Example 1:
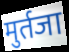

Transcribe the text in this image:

मुर्तजा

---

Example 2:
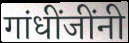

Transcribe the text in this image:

गांधींजींनी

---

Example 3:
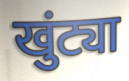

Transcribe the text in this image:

खुंट्या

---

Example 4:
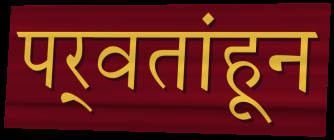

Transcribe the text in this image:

पर्वतांहून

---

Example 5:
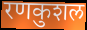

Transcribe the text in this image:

रणकुशल